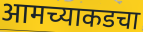
आमच्याकडचा